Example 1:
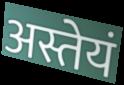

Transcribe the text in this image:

अस्तेयं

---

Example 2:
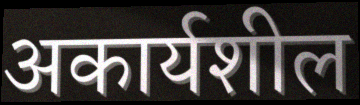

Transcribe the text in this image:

अकार्यशील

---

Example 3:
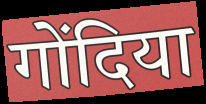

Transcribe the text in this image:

गोंदिया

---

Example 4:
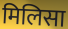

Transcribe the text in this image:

मिलिसा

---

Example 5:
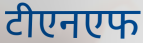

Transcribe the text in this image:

टीएनएफ